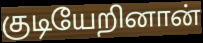
குடியேறினான்